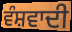
ਵੰਸ਼ਵਾਦੀ